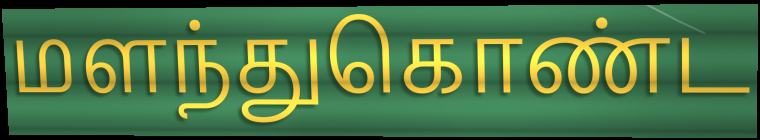
மளந்துகொண்ட